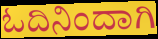
ಓದಿನಿಂದಾಗಿ